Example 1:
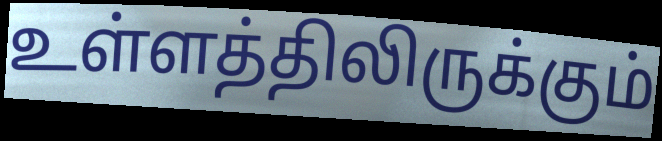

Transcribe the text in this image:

உள்ளத்திலிருக்கும்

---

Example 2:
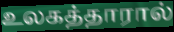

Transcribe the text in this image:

உலகத்தாரால்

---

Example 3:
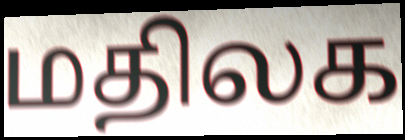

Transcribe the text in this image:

மதிலக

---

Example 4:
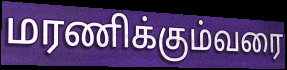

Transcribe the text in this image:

மரணிக்கும்வரை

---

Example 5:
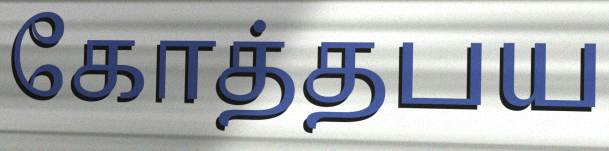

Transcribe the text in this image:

கோத்தபய